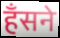
हँसने